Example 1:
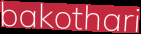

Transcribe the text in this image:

bakothari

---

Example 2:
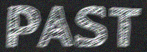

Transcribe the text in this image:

PAST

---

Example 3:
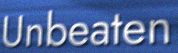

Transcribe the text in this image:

Unbeaten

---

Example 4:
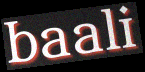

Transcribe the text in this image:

baali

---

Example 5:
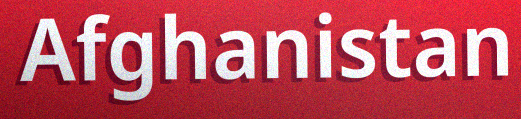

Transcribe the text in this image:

Afghanistan